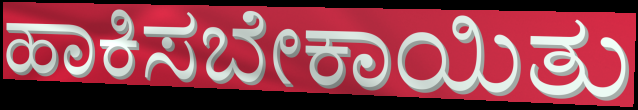
ಹಾಕಿಸಬೇಕಾಯಿತು